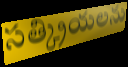
సత్క్రియలను